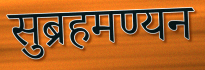
सुब्रहमण्यन